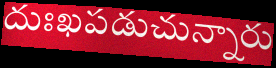
దుఃఖపడుచున్నారు